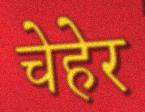
चेहेर